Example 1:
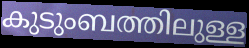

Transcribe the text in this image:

കുടുംബത്തിലുള്ള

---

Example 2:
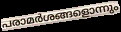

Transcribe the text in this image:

പരാമർശങ്ങളൊന്നും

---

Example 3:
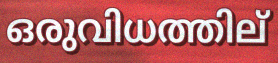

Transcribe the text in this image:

ഒരുവിധത്തില്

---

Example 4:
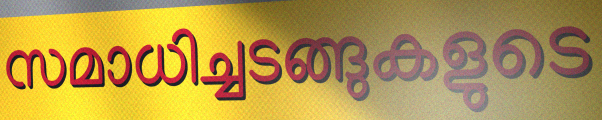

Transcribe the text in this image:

സമാധിച്ചടങ്ങുകളുടെ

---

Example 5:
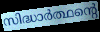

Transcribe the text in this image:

സിദ്ധാർത്ഥന്റെ